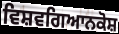
ਵਿਸ਼ਵਗਿਆਨਕੋਸ਼